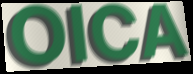
OICA